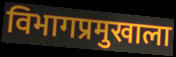
विभागप्रमुखाला